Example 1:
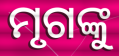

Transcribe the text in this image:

ମୃଗଙ୍କୁ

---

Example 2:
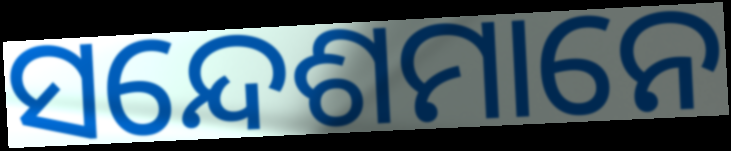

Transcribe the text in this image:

ସନ୍ଦେଶମାନେ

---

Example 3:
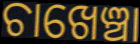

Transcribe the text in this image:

ଚାଖେଞ୍ଚା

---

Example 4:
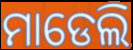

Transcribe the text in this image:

ମାଡେଲି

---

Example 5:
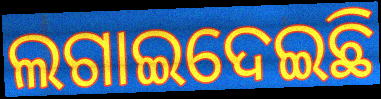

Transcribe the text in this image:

ଲଗାଇଦେଇଛି